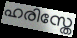
ഹരിസ്തേ